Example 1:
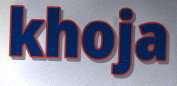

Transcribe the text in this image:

khoja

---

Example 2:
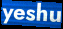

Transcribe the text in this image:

yeshu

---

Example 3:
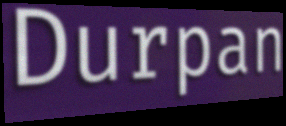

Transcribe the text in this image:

Durpan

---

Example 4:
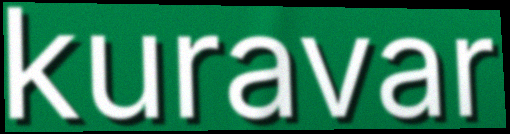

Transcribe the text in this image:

kuravar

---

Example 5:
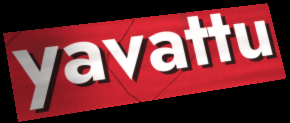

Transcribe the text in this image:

yavattu